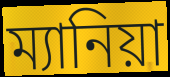
ম্যানিয়া